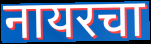
नायरचा